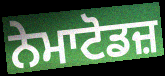
ਨੇਮਾਟੋਡਜ਼